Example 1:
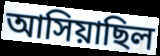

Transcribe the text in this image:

আসিয়াছিল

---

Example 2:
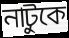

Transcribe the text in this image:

নাটুকে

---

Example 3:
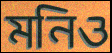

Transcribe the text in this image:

মনিও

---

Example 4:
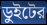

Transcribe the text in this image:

ডুইটের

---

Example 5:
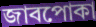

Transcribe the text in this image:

জাবপোকা